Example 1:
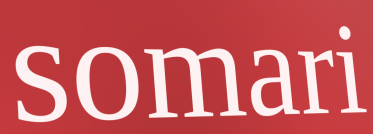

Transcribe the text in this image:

somari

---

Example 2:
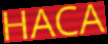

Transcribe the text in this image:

HACA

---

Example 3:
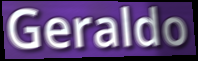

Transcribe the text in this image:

Geraldo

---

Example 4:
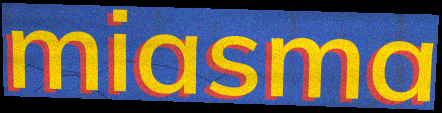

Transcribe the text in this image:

miasma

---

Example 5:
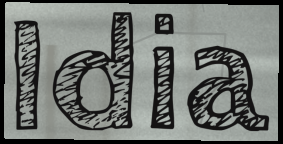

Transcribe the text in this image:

Idia